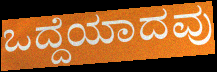
ಒದ್ದೆಯಾದವು